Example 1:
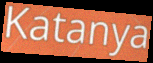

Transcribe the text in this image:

Katanya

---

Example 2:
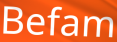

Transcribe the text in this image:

Befam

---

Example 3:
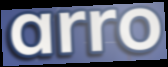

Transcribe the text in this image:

arro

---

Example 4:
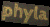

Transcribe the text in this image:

phyla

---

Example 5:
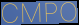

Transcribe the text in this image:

CMPO